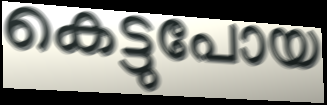
കെട്ടുപോയ